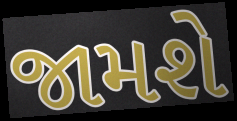
જામશે